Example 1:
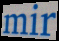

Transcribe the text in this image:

mir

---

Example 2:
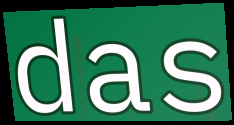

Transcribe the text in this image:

das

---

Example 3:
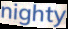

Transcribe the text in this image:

nighty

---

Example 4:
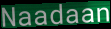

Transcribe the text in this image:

Naadaan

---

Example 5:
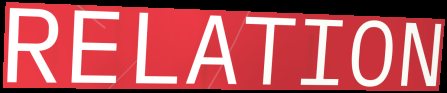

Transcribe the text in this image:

RELATION